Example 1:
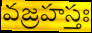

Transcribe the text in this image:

వజ్రహస్తః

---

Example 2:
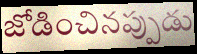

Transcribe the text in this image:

జోడించినప్పుడు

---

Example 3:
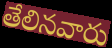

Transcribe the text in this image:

తేలినవారు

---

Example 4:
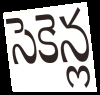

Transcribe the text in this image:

సెకెన్ల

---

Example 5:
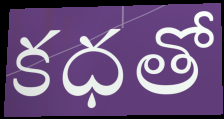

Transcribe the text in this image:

కధతో